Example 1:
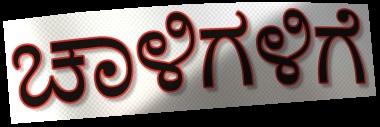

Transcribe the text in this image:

ಚಾಳಿಗಳಿಗೆ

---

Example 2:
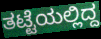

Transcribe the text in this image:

ತಟ್ಟೆಯಲ್ಲಿದ್ದ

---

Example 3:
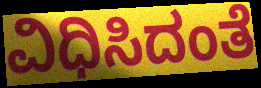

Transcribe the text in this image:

ವಿಧಿಸಿದಂತೆ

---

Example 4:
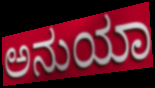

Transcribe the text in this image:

ಅನುಯಾ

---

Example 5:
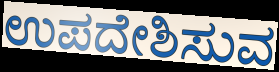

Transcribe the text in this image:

ಉಪದೇಶಿಸುವ